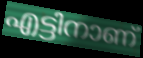
എട്ടിനാണ്